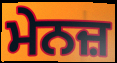
ਮੇਨਜ਼